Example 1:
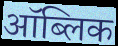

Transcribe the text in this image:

ऑब्लिक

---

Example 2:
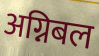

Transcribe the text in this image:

अग्निबल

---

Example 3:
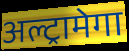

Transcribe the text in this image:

अल्ट्रामेगा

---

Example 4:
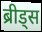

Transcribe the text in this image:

ब्रीड्स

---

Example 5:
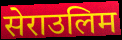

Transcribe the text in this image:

सेराउलिम